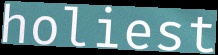
holiest